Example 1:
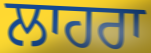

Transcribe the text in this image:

ਲਾਹਰਾ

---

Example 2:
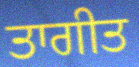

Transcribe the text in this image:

ਤਾਗੀਤ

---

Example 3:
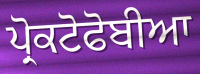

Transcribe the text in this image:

ਪ੍ਰੋਕਟੋਫੋਬੀਆ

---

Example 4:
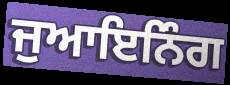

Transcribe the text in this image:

ਜੁਆਇਨਿੰਗ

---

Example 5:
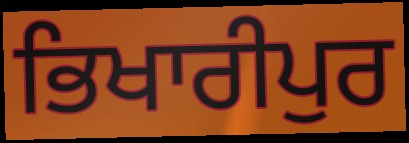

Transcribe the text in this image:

ਭਿਖਾਰੀਪੁਰ